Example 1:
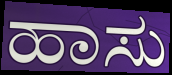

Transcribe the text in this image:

ಹಾಸು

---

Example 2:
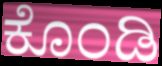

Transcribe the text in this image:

ಕೊಂಡಿ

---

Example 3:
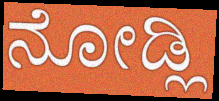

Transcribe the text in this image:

ನೋಡ್ಲಿ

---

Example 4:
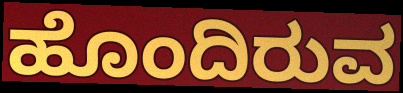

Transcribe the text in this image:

ಹೊಂದಿರುವ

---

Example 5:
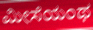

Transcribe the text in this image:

ಮೀಸೆಯಂಥ